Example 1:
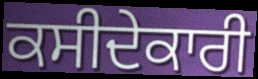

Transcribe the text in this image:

ਕਸੀਦੇਕਾਰੀ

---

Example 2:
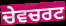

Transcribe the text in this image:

ਚੇਵਚਰਟ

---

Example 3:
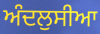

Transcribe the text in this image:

ਅੰਦਲੁਸੀਆ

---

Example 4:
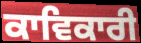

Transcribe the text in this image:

ਕਾਵਿਕਾਰੀ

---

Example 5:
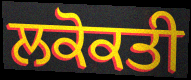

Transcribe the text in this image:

ਲਕੋਕਤੀ